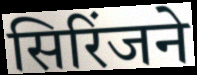
सिरिंजने